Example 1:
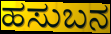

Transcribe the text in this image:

ಹಸುಬನ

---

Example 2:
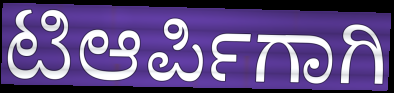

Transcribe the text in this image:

ಟಿಆರ್ಪಿಗಾಗಿ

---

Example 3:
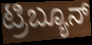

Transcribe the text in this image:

ಟ್ರಿಬ್ಯೂನ್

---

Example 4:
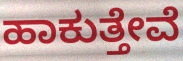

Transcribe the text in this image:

ಹಾಕುತ್ತೇವೆ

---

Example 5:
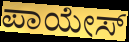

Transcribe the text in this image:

ಪಾಯೇಸ್